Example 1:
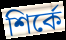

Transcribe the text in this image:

শির্কে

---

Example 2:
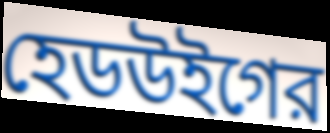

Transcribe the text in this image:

হেডউইগের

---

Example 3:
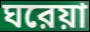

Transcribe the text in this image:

ঘরেয়া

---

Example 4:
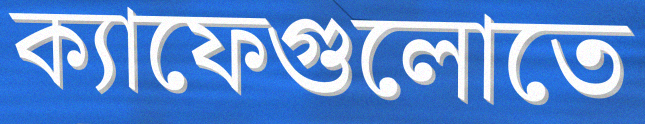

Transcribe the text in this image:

ক্যাফেগুলোতে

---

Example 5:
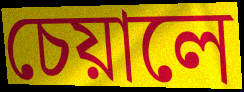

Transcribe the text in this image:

চেয়ালে